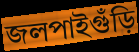
জলপাইগুঁড়ি